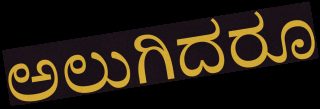
ಅಲುಗಿದರೂ